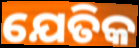
ଯେତିକ